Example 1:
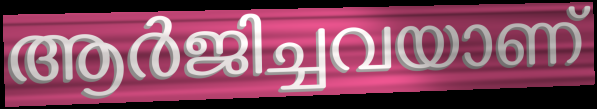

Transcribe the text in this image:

ആർജിച്ചവയാണ്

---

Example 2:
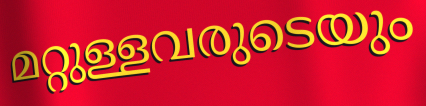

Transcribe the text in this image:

മറ്റുള്ളവരുടെയും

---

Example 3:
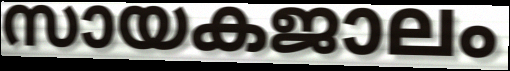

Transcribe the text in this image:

സായകജാലം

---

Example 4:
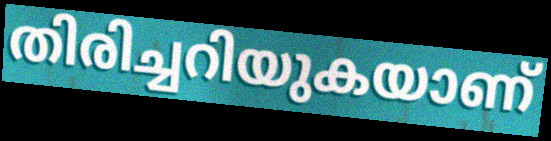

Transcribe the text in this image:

തിരിച്ചറിയുകയാണ്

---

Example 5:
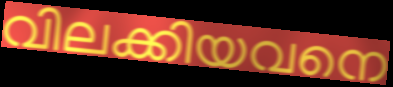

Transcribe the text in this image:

വിലക്കിയവനെ